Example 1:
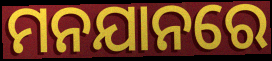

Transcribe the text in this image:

ମନଯାନରେ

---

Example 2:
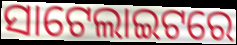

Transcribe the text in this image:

ସାଟେଲାଇଟରେ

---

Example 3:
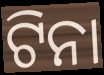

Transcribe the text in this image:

ଟିନା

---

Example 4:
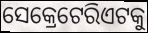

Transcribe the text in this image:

ସେକ୍ରେଟେରିଏଟକୁ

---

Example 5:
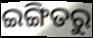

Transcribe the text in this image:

ଇଙ୍ଗିତରୁ